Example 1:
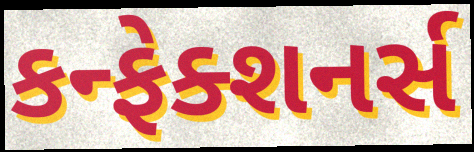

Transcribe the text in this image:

કન્ફેક્શનર્સ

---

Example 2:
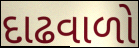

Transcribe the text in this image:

દાઢવાળો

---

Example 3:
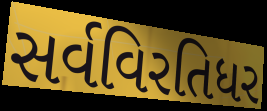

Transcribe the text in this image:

સર્વવિરતિધર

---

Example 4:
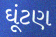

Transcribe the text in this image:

ઘૂંટણ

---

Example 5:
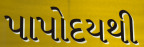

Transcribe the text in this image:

પાપોદયથી